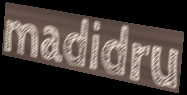
madidru